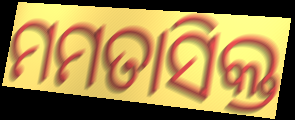
ମମତାସିକ୍ତ